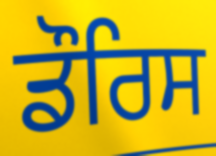
ਡੌਰਿਸ